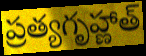
ప్రత్యగృహ్ణాత్